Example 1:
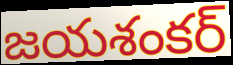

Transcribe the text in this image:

జయశంకర్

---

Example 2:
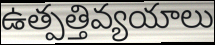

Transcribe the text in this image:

ఉత్పత్తివ్యయాలు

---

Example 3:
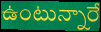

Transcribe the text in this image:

ఉంటున్నారే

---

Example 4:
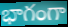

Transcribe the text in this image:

భాగంగా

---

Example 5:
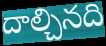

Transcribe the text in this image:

దాల్చినది